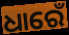
ଧାରେଁ